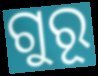
ଗୁରୂ